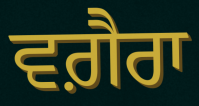
ਵਗ਼ੈਰਾ